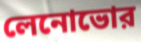
লেনোভোর